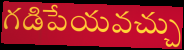
గడిపేయవచ్చు